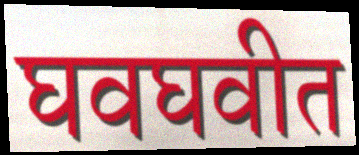
घवघवीत